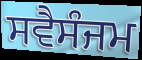
ਸਵੈਸੰਜਮ